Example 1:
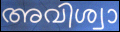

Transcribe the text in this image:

അവിശ്വാ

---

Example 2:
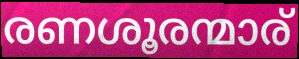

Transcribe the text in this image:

രണശൂരന്മാര്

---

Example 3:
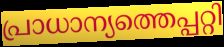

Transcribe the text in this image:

പ്രാധാന്യത്തെപ്പറ്റി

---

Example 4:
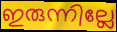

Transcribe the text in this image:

ഇരുന്നില്ലേ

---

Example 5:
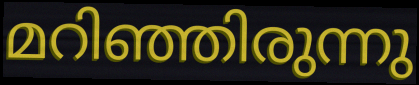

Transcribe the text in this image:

മറിഞ്ഞിരുന്നു